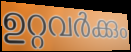
ഉറ്റവർക്കും